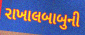
રાખાલબાબુની